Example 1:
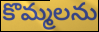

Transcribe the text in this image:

కొమ్మలను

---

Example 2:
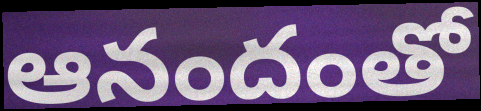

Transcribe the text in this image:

ఆనందంతో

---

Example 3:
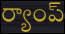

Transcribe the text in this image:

ర్యాంప్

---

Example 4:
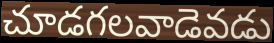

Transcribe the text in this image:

చూడగలవాడెవడు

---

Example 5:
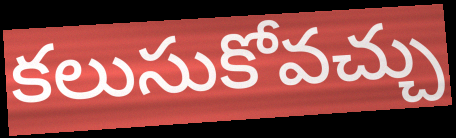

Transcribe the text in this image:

కలుసుకోవచ్చు